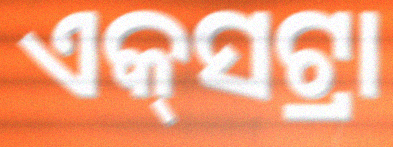
ଏକ୍‍ସଟ୍ରା